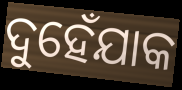
ଦୁହେଁଯାକ